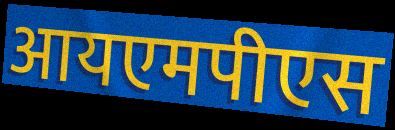
आयएमपीएस